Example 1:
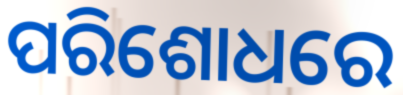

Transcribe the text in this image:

ପରିଶୋଧରେ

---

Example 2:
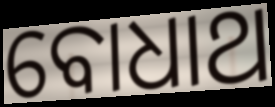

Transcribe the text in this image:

ବୋଧାଥ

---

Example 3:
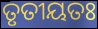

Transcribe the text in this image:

ତୃତୀୟତଃ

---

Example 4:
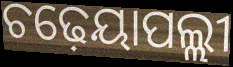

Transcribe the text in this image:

ଚଢ଼େୟାପଲ୍ଲୀ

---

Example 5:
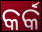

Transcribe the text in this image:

କର୍କ